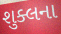
શુક્લના